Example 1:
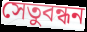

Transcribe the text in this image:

সেতুবন্ধন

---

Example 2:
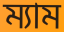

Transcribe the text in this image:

ম্যাম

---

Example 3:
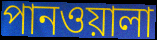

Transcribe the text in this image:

পানওয়ালা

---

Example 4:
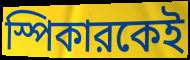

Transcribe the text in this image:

স্পিকারকেই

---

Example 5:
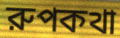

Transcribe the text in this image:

রুপকথা